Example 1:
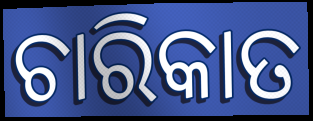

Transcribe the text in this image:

ଚାରିକାତ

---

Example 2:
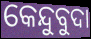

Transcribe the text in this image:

କେନ୍ଦୁବୁଦା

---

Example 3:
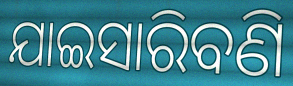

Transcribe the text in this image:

ଯାଇସାରିବଣି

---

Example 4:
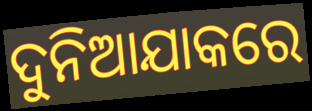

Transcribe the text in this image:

ଦୁନିଆଯାକରେ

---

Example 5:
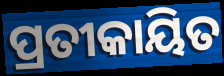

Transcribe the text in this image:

ପ୍ରତୀକାୟିତ